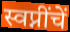
स्वप्नींचें